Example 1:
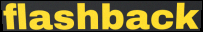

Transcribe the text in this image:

flashback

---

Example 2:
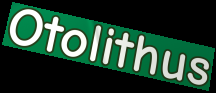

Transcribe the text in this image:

Otolithus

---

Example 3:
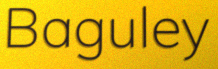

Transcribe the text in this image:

Baguley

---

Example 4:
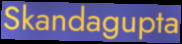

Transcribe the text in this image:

Skandagupta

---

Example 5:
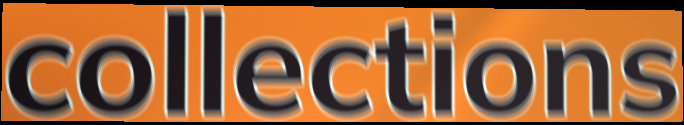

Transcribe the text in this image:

collections